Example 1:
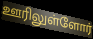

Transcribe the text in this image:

ஊரிலுள்ளோர்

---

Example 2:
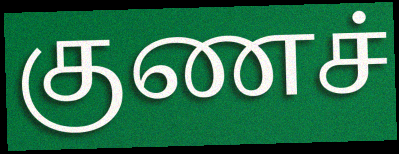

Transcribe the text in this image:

குணச்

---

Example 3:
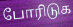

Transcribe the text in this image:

போரிடுக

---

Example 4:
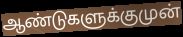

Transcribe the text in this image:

ஆண்டுகளுக்குமுன்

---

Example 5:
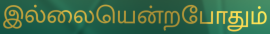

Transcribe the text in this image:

இல்லையென்றபோதும்